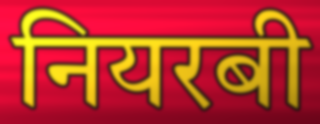
नियरबी